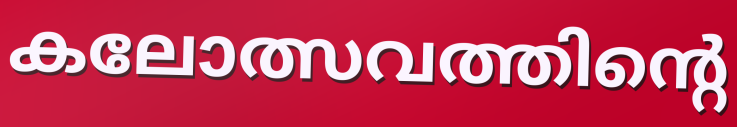
കലോത്സവത്തിന്റെ